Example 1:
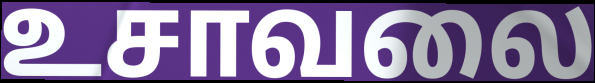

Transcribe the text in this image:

உசாவலை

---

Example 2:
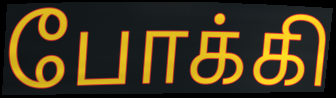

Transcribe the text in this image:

போக்கி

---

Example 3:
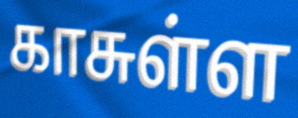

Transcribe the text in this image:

காசுள்ள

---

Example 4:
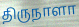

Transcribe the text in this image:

திருநாளா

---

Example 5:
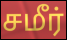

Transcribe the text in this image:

சமீர்